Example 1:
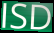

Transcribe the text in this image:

ISD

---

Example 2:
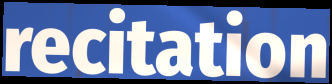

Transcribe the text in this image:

recitation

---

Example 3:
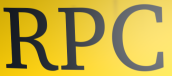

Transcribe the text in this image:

RPC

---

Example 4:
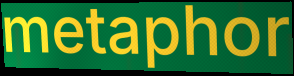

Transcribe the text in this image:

metaphor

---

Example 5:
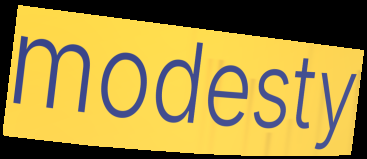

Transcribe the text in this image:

modesty